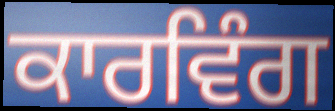
ਕਾਰਵਿੰਗ